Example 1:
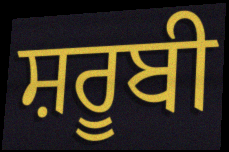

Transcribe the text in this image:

ਸ਼ਰੂਬੀ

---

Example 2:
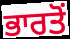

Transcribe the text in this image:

ਭਾਰਤੋਂ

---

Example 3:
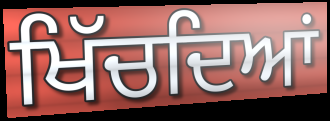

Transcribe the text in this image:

ਖਿੱਚਦਿਆਂ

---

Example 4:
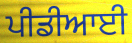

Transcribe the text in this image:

ਪੀਡੀਆਈ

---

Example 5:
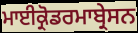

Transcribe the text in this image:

ਮਾਈਕ੍ਰੋਡਰਮਾਬ੍ਰੇਸਨ